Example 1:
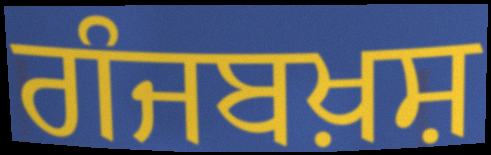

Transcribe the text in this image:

ਗੰਜਬਖ਼ਸ਼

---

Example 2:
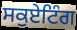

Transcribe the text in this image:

ਸਕੁਏਟਿੰਗ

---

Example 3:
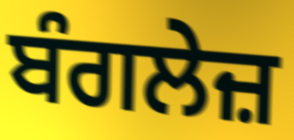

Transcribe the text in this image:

ਬੰਗਲੇਜ਼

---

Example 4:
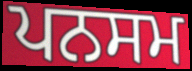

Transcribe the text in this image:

ਪਨਸਮ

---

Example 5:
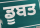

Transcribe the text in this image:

ਡੂਬਤ